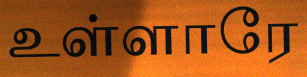
உள்ளாரே